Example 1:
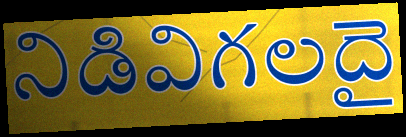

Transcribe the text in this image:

నిడివిగలదై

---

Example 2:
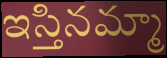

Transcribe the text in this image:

ఇస్తినమ్మా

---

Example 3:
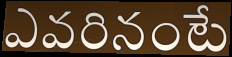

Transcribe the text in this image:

ఎవరినంటే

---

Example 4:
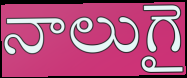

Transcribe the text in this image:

నాలుగై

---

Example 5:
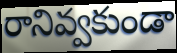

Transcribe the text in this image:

రానివ్వకుండా